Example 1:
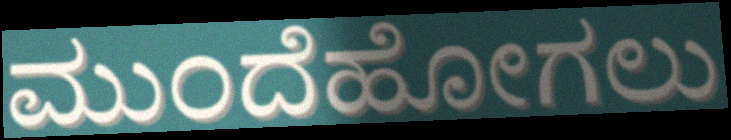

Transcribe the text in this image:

ಮುಂದೆಹೋಗಲು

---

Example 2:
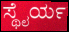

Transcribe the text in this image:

ಸ್ಥೈರ್ಯ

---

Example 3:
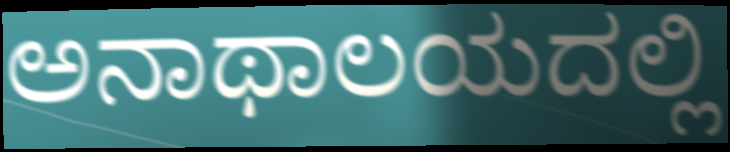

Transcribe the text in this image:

ಅನಾಥಾಲಯದಲ್ಲಿ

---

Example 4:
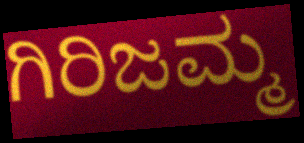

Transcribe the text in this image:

ಗಿರಿಜಮ್ಮ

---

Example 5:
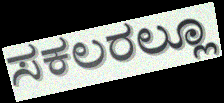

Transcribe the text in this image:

ಸಕಲರಲ್ಲೂ